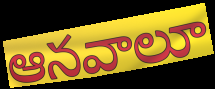
ఆనవాలూ